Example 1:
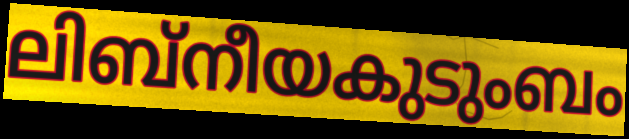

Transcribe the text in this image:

ലിബ്നീയകുടുംബം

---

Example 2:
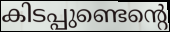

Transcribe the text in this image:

കിടപ്പുണ്ടെന്റെ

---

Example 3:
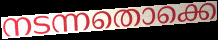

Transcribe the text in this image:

നടന്നതൊക്കെ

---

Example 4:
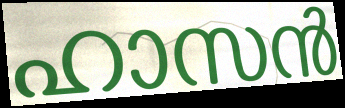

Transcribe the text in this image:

ഹാസൻ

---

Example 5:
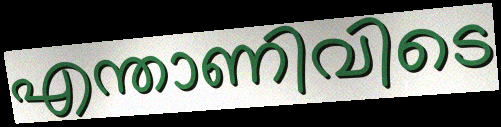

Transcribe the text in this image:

എന്താണിവിടെ